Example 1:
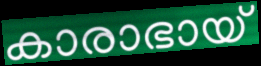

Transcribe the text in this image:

കാരാഭായ്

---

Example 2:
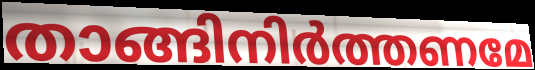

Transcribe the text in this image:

താങ്ങിനിർത്തണമേ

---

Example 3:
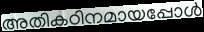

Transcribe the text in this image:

അതികഠിനമായപ്പോൾ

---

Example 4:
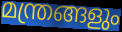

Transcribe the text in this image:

മന്ത്രങ്ങളും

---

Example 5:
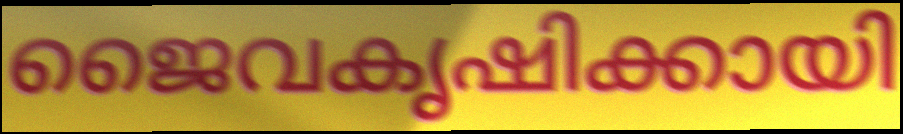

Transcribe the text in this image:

ജൈവകൃഷിക്കായി